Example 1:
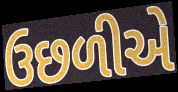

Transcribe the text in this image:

ઉછળીએ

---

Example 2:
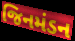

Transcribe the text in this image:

જિનમંડન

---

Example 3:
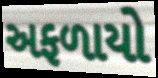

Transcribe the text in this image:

અફળાયો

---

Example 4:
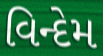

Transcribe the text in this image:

વિન્દેમ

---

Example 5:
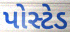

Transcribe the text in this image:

પોસ્ટેડ